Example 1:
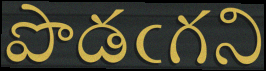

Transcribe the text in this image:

పొడఁగని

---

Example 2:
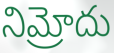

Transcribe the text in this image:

నిమ్రోదు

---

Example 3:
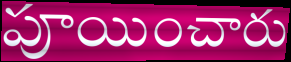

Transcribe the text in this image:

పూయించారు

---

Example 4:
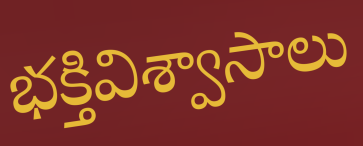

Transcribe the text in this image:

భక్తివిశ్వాసాలు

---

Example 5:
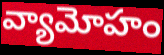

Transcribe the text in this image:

వ్యామోహం